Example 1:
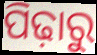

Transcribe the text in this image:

ପିଢ଼ାରୁ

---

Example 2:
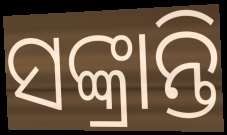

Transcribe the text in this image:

ସଙ୍କ୍ରାନ୍ତି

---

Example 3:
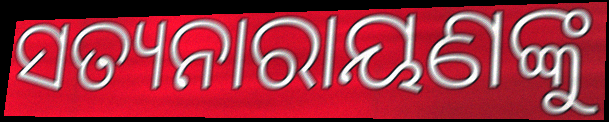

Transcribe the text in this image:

ସତ୍ୟନାରାୟଣଙ୍କୁ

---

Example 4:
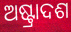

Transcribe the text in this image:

ଅଷ୍ଟ୍ରାଦଶ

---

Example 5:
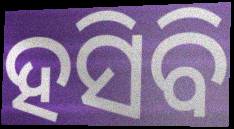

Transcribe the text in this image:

ହସିବି